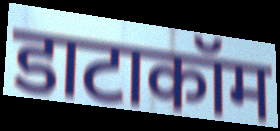
डाटाकॉम